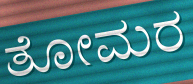
ತೋಮರ